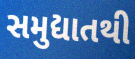
સમુદ્યાતથી